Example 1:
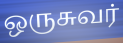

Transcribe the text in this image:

ஒருசுவர்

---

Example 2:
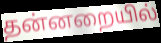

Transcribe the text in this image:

தன்னறையில்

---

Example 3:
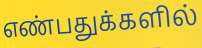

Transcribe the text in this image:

எண்பதுக்களில்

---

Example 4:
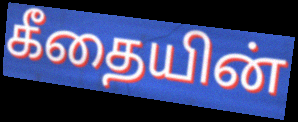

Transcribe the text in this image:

கீதையின்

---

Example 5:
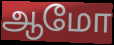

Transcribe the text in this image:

ஆமோ